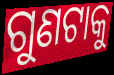
ଗୁଣଟାକୁ